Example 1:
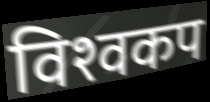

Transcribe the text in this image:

विश्वकप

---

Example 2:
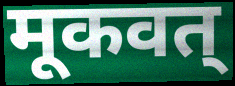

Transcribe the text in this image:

मूकवत्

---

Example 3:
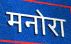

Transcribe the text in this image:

मनोरा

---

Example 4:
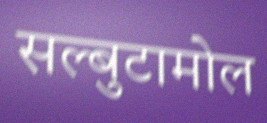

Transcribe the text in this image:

सल्बुटामोल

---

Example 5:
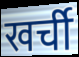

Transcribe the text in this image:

खर्ची